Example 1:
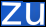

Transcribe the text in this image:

zu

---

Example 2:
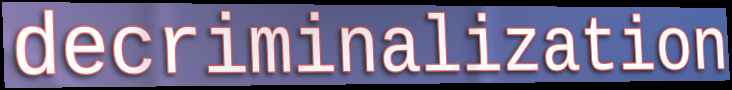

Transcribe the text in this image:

decriminalization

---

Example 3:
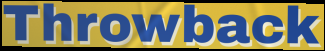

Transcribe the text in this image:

Throwback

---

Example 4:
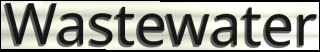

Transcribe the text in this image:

Wastewater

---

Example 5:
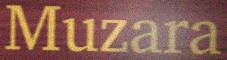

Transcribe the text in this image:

Muzara